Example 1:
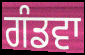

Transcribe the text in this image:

ਗੰਡਵਾ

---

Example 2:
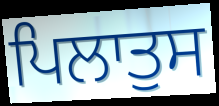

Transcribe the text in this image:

ਪਿਲਾਤੁਸ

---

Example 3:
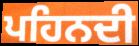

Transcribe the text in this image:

ਪਹਿਨਦੀ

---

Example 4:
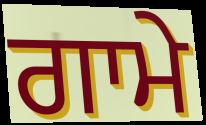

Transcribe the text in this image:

ਗਾਮੇ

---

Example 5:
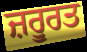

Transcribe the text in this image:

ਜ਼ਰੂਰਤ